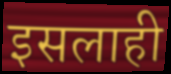
इसलाही